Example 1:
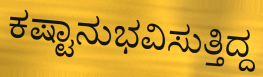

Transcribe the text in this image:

ಕಷ್ಟಾನುಭವಿಸುತ್ತಿದ್ದ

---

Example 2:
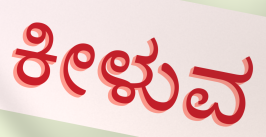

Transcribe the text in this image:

ಕೀಳುವ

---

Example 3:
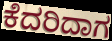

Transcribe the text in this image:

ಕೆದರಿದಾಗ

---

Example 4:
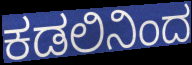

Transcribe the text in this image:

ಕಡಲಿನಿಂದ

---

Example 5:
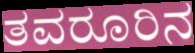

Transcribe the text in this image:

ತವರೂರಿನ